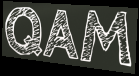
QAM